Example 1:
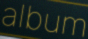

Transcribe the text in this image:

album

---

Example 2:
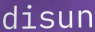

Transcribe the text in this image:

disun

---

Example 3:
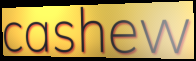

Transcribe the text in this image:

cashew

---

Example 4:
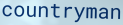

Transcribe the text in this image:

countryman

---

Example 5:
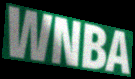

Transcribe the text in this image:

WNBA